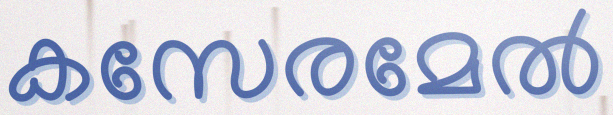
കസേരമേൽ